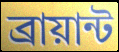
ব্রায়ান্ট